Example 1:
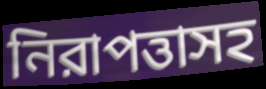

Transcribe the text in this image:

নিরাপত্তাসহ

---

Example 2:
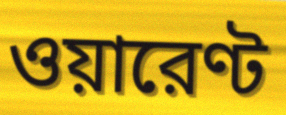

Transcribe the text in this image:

ওয়ারেণ্ট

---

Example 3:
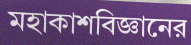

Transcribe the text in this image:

মহাকাশবিজ্ঞানের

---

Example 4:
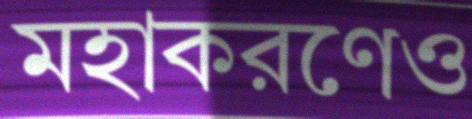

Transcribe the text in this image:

মহাকরণেও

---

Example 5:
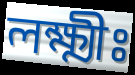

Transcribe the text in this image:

লক্ষ্মীঃ